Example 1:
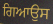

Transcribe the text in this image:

ਗਿਆਉਸ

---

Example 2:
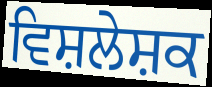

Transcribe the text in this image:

ਵਿਸ਼ਲੇਸ਼ਕ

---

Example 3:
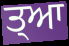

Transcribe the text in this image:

ਤ੍ਆ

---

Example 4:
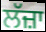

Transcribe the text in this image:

ਲੱਜ਼ਾ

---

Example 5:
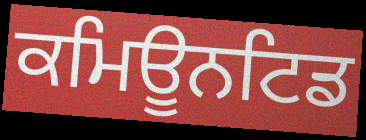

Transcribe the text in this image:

ਕਮਿਊਨਟਿਡ